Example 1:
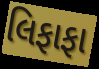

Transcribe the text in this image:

લિફાફા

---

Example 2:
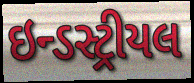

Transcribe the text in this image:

ઇન્ડસ્ટ્રીયલ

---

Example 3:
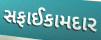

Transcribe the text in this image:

સફાઈકામદાર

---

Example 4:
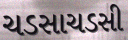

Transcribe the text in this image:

ચડસાચડસી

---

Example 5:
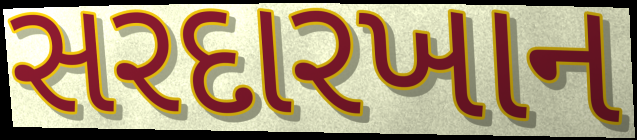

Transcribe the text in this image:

સરદારખાન